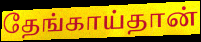
தேங்காய்தான்